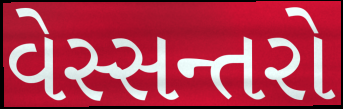
વેસ્સન્તરો